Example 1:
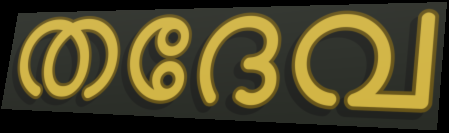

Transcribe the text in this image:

തദേവ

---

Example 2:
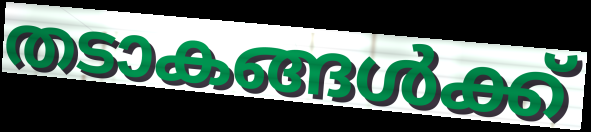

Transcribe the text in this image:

തടാകങ്ങൾക്ക്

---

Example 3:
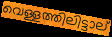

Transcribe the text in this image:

വെള്ളത്തിലിട്ടാല്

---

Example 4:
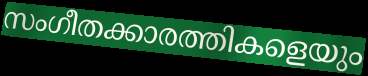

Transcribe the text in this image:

സംഗീതക്കാരത്തികളെയും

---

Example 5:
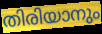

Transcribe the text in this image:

തിരിയാനും